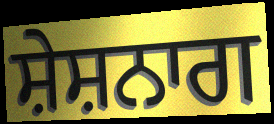
ਸ਼ੇਸ਼ਨਾਗ